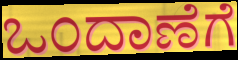
ಒಂದಾಣೆಗೆ